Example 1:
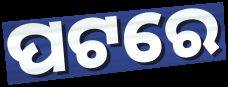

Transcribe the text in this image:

ପଟରେ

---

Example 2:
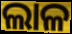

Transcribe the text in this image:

ଲାଳ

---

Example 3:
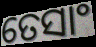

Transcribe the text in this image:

ତେସାଂ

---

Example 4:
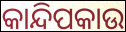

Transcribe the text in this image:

କାନ୍ଦିପକାଉ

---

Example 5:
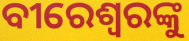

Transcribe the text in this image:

ବୀରେଶ୍ୱରଙ୍କୁ